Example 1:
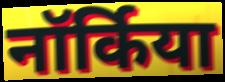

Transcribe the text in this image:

नॉर्किया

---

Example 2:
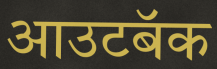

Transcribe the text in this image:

आउटबॅक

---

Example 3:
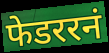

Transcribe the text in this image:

फेडररनं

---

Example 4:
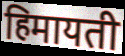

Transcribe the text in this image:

हिमायती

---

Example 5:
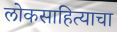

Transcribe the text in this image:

लोकसाहित्याचा